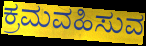
ಕ್ರಮವಹಿಸುವ